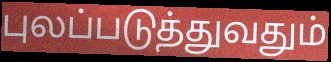
புலப்படுத்துவதும்